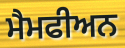
ਮੈਮਫੀਅਨ